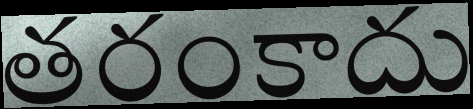
తరంకాదు